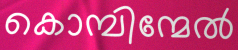
കൊമ്പിന്മേൽ